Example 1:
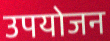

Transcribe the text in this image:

उपयोजन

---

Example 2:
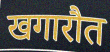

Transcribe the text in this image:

खगारौत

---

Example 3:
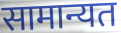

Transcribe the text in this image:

सामान्यत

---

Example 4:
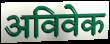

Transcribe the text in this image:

अविवेक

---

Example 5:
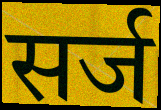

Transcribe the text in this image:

सर्ज